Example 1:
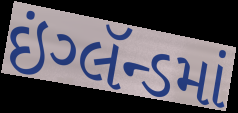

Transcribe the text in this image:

ઇંગ્લૅન્ડમાં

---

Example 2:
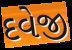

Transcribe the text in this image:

દવેજી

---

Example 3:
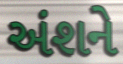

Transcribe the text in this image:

અંશને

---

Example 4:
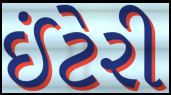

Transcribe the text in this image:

ઈંટેરી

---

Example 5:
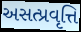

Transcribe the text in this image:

અસત્પ્રવૃત્તિ